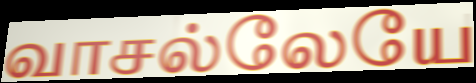
வாசல்லேயே